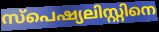
സ്പെഷ്യലിസ്റ്റിനെ